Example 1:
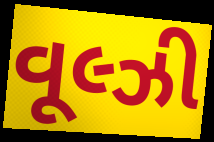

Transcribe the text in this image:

વૂલ્ઝી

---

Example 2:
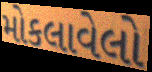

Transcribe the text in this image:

મોકલાવેલો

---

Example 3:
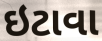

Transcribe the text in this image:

ઇટાવા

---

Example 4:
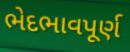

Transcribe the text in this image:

ભેદભાવપૂર્ણ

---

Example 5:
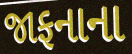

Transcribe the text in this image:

જાફનાના